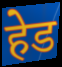
हेड